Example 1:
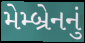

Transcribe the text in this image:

મેમ્બ્રેનનું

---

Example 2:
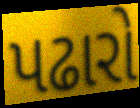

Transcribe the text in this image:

પઢારો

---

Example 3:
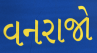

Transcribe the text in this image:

વનરાજો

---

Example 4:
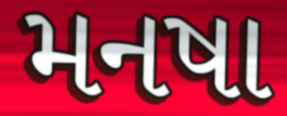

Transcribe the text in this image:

મનષા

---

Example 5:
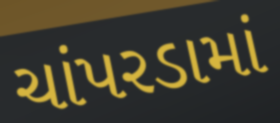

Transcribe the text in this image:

ચાંપરડામાં